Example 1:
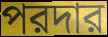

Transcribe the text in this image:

পরদার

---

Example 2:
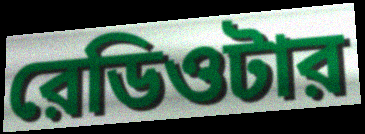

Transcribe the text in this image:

রেডিওটার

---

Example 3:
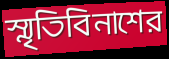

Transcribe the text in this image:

স্মৃতিবিনাশের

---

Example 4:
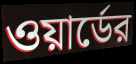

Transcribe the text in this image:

ওয়ার্ডের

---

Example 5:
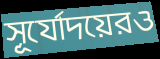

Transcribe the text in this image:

সূর্যোদয়েরও